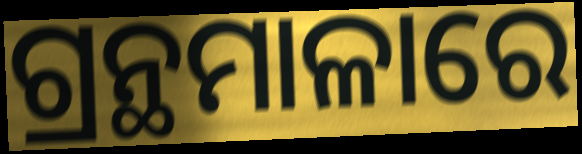
ଗ୍ରନ୍ଥମାଳାରେ